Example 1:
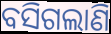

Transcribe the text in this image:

ବସିଗଲାଣି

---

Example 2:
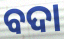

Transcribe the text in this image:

ବଦା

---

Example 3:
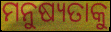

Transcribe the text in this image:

ମନୁଷ୍ୟତାକୁ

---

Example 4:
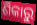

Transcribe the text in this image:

ଶିକାରୁ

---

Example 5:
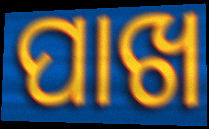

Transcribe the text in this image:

ପାଖ